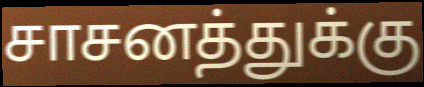
சாசனத்துக்கு